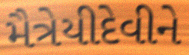
મૈત્રેયીદેવીને